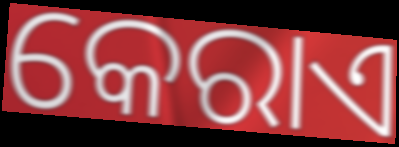
କେରାଏ